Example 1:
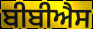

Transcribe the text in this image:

ਬੀਬੀਐਸ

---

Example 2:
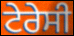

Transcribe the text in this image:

ਟੇਰੇਸੀ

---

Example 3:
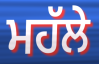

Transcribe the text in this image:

ਮਹੱਲੇ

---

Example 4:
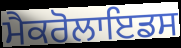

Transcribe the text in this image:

ਮੈਕਰੋਲਾਇਡਸ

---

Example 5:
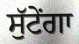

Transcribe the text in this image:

ਸੁੱਟੇਂਗਾ